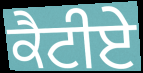
ਕੈਟੀਏ